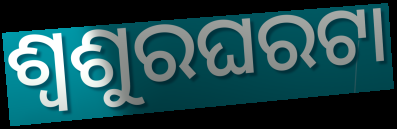
ଶ୍ୱଶୁରଘରଟା